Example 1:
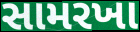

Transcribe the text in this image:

સામરખા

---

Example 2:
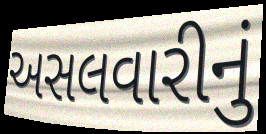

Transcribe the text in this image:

અસલવારીનું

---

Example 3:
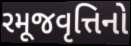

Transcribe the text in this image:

રમૂજવૃત્તિનો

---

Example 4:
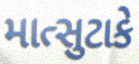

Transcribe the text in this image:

માત્સુટાકે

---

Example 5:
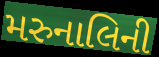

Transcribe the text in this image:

મરુનાલિની